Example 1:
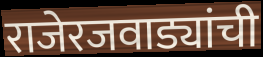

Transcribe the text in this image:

राजेरजवाड्यांची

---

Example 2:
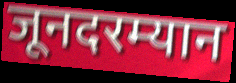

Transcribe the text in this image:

जूनदरम्यान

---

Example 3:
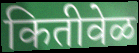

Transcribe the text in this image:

कितीवेळ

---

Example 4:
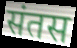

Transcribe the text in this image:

संतस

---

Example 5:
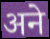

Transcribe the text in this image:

अने